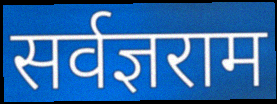
सर्वज्ञराम